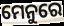
ମେନୁରେ